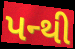
પન્થી